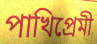
পাখিপ্রেমী